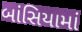
બાંસિયામાં